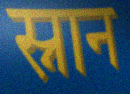
स्नान